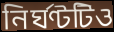
নির্ঘণ্টটিও